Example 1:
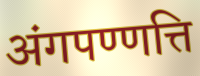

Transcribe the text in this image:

अंगपण्णत्ति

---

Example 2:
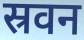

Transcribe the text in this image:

स्रवन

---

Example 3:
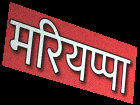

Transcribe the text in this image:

मरियप्पा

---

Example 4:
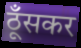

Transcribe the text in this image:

ठूँसकर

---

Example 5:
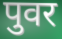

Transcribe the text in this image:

पुवर